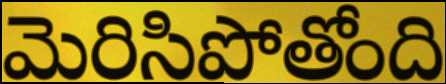
మెరిసిపోతోంది